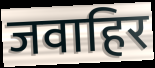
जवाहिर